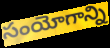
సంయోగాన్ని